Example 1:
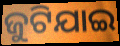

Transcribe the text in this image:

ଜୁଟିଯାଇ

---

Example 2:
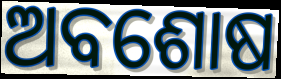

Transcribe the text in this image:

ଅବଶୋଷ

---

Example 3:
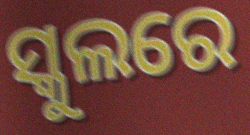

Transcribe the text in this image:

ସ୍କୁଲରେ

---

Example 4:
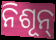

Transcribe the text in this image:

ନିଶୂନ୍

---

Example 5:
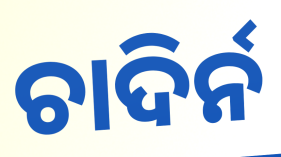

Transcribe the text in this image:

ଚାଦିର୍ନ